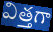
విత్తగా